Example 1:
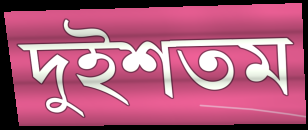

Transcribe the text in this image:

দুইশতম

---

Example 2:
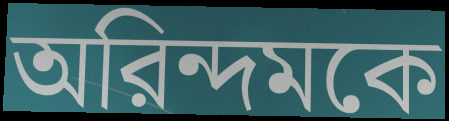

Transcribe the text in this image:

অরিন্দমকে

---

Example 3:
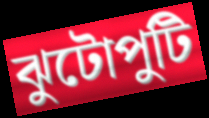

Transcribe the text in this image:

ঝুটোপুটি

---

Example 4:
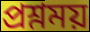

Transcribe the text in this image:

প্রশ্নময়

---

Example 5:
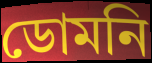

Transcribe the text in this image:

ডোমনি